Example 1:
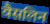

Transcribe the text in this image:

वैसलिन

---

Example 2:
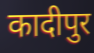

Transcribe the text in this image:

कादीपुर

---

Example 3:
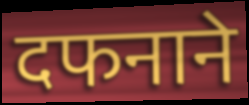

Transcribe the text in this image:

दफनाने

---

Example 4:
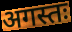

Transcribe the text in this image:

अगस्तः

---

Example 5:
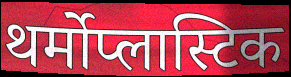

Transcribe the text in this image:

थर्मोप्लास्टिक